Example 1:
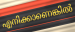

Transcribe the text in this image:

എനിക്കാണെങ്കിൽ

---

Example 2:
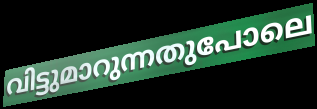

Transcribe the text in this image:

വിട്ടുമാറുന്നതുപോലെ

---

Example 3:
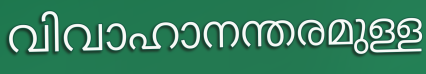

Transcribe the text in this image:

വിവാഹാനന്തരമുള്ള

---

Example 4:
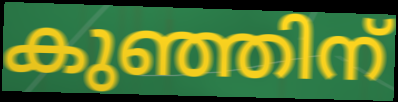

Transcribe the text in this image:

കുഞ്ഞിന്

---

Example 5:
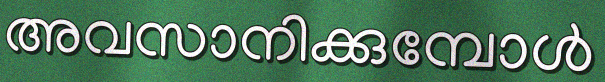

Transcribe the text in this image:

അവസാനിക്കുമ്പോൾ